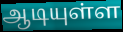
ஆடியுள்ள